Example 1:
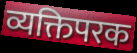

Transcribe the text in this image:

व्यक्तिपरक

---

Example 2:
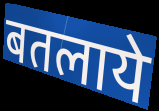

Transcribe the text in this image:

बतलाये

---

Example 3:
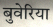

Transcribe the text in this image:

बुवेरिया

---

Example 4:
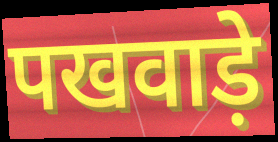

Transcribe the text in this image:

पखवाड़े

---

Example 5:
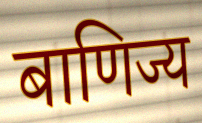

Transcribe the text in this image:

बाणिज्य